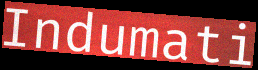
Indumati